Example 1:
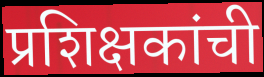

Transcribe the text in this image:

प्रशिक्षकांची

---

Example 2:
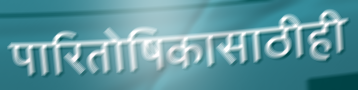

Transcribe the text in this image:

पारितोषिकासाठीही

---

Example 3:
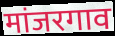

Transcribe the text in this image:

मांजरगाव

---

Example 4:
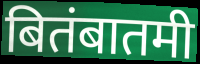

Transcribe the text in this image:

बितंबातमी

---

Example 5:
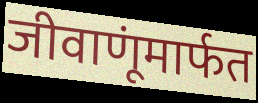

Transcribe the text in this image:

जीवाणूंमार्फत